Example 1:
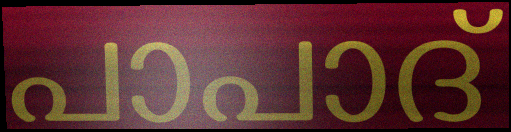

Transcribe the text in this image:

പാപാദ്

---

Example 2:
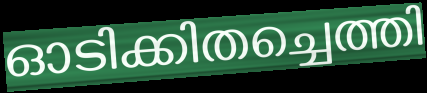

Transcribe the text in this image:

ഓടിക്കിതച്ചെത്തി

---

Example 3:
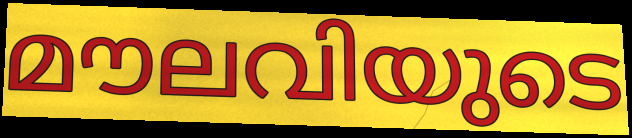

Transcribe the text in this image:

മൗലവിയുടെ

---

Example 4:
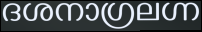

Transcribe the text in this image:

ദശനാഗ്രലഗ്ന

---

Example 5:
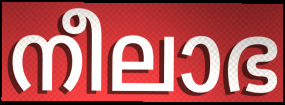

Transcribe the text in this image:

നീലാഭ